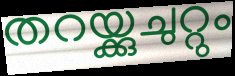
തറയ്ക്കുചുറ്റും